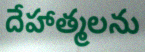
దేహాత్మలను